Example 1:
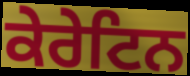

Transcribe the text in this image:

ਕੇਰੇਟਿਨ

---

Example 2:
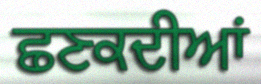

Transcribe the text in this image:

ਛਣਕਦੀਆਂ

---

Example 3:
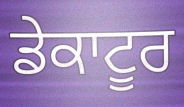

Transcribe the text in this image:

ਡੇਕਾਟੂਰ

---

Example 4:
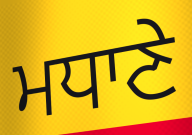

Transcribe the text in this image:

ਮਧਾਣੇ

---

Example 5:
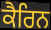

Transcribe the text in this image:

ਕੈਰਿਨ